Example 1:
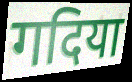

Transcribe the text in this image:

गदिया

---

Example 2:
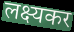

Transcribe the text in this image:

लक्ष्यकर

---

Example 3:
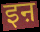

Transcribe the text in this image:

इऩ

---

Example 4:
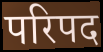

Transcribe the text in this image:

परिपद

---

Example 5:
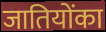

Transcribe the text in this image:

जातियोंका